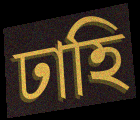
ঢাহি